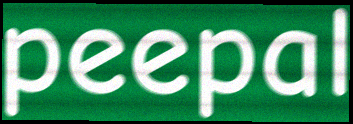
peepal